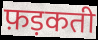
फ़ड़कती